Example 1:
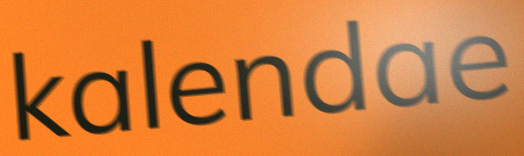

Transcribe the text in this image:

kalendae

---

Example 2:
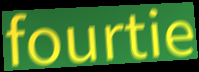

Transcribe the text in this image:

fourtie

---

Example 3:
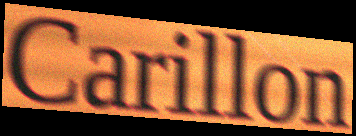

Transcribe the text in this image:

Carillon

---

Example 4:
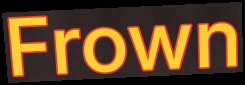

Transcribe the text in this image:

Frown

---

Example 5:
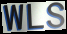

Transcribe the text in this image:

WLS